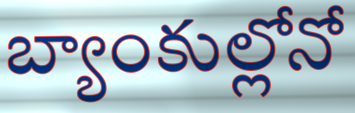
బ్యాంకుల్లోనో